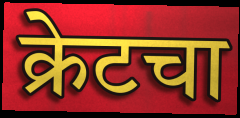
क्रेटचा